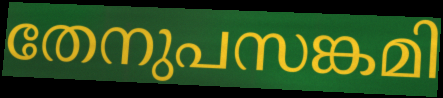
തേനുപസങ്കമി